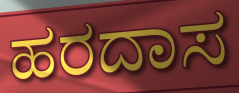
ಹರದಾಸ